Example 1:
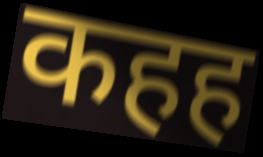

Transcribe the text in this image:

कहह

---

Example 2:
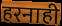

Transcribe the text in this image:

हरनाही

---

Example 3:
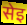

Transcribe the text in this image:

सेइ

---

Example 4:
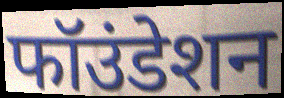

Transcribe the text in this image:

फॉउंडेशन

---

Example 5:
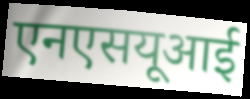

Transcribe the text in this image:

एनएसयूआई